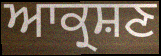
ਆਕ੍ਰਸ਼ਣ